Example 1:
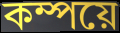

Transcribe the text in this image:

কম্পয়ে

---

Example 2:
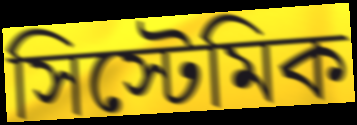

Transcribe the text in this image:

সিস্টেমিক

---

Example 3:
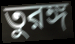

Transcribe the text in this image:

তুরঙ্গ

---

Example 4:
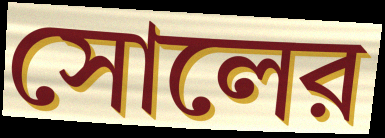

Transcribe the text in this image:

সোলের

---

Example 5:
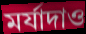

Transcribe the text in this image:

মর্যাদাও